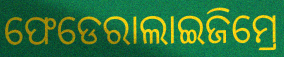
ଫେଡେରାଲାଇଜିମ୍ରେ